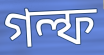
গল্ফ